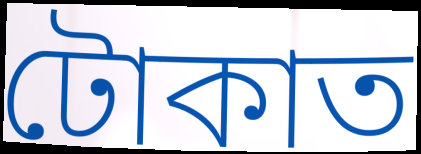
টোকাত